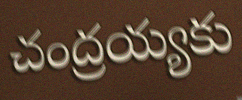
చంద్రయ్యకు